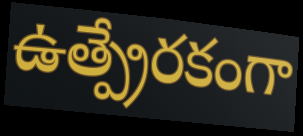
ఉత్ప్రేరకంగా